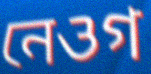
নেওগ